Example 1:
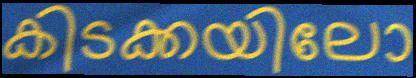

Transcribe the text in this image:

കിടക്കയിലോ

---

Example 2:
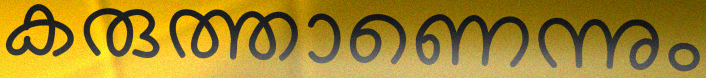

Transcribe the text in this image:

കരുത്താണെന്നും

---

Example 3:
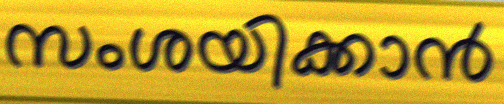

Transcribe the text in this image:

സംശയിക്കാൻ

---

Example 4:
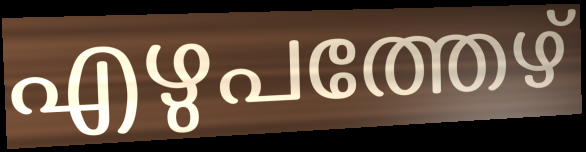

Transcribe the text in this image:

എഴുപത്തേഴ്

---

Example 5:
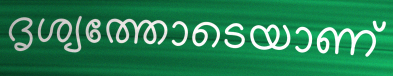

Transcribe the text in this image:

ദൃശ്യത്തോടെയാണ്